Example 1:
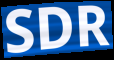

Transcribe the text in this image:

SDR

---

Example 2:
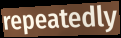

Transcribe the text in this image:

repeatedly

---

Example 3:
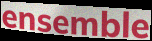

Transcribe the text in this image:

ensemble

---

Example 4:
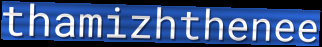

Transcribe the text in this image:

thamizhthenee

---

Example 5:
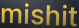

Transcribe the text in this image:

mishit